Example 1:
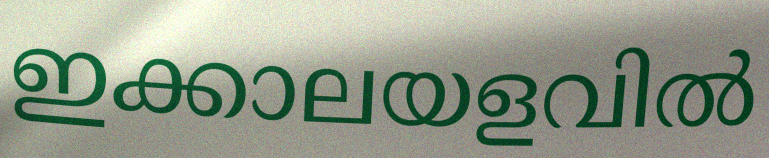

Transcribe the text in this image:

ഇക്കാലയളവിൽ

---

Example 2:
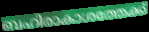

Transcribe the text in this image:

ബഹിരാകാശത്തേക്ക്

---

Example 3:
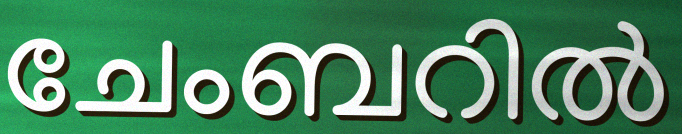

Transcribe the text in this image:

ചേംബറിൽ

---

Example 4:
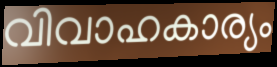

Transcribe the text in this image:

വിവാഹകാര്യം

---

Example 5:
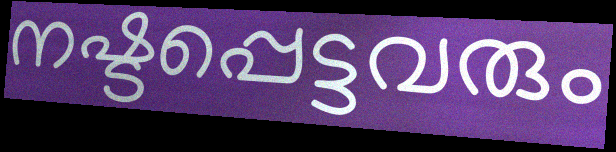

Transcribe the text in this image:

നഷ്ടപ്പെട്ടവരും